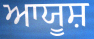
ਆਯੂਸ਼